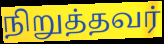
நிறுத்தவர்